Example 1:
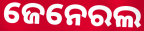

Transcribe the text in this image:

ଜେନେରଲ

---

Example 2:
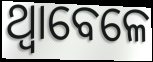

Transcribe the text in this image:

ଥ୍ବାବେଳେ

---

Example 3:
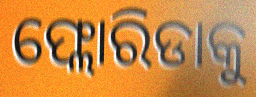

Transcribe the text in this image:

ଫ୍ଲୋରିଡାକୁ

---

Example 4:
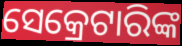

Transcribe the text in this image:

ସେକ୍ରେଟାରିଙ୍କ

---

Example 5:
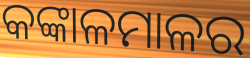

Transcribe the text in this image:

କଙ୍କାଳମାଳର